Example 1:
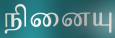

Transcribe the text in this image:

நினையு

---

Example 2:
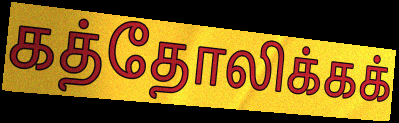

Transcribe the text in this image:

கத்தோலிக்கக்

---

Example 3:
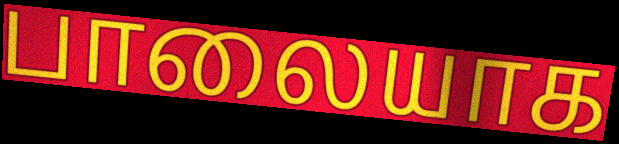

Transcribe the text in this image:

பாலையாக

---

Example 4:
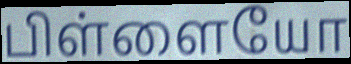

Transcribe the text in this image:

பிள்ளையோ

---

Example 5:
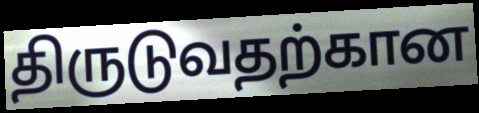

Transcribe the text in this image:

திருடுவதற்கான